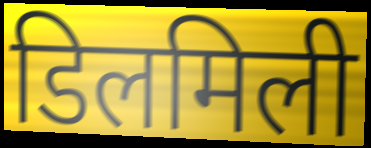
डिलमिली